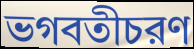
ভগবতীচরণ